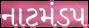
નાટમંડપ